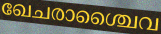
ഖേചരാശ്ചൈവ